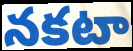
నకటా